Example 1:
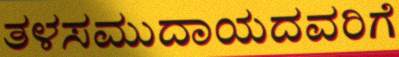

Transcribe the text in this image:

ತಳಸಮುದಾಯದವರಿಗೆ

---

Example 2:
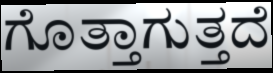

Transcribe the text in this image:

ಗೊತ್ತಾಗುತ್ತದೆ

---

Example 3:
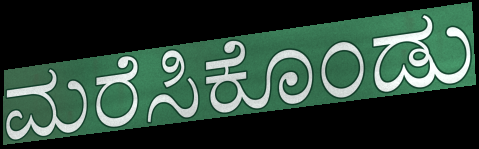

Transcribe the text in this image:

ಮರೆಸಿಕೊಂಡು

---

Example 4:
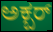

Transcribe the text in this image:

ಅಕ್ಬರ್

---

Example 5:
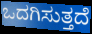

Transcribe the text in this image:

ಒದಗಿಸುತ್ತದೆ